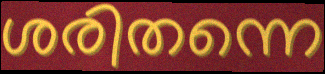
ശരിതന്നെ